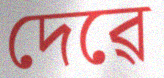
দেৱে